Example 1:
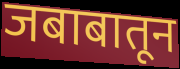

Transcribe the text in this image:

जबाबातून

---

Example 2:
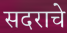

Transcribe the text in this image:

सदराचे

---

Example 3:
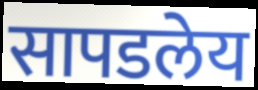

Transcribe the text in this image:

सापडलेय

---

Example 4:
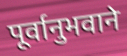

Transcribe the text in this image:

पूर्वानुभवाने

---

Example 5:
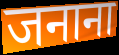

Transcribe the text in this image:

जनाना